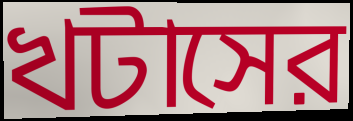
খটাসের